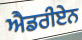
ਐਡਰੀਏਨ